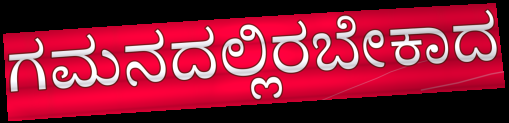
ಗಮನದಲ್ಲಿರಬೇಕಾದ